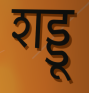
शड्डू